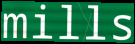
mills